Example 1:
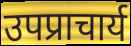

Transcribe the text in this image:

उपप्राचार्य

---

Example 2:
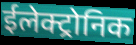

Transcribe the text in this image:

ईलेक्ट्रोनिक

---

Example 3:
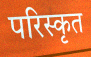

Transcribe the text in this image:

परिस्कृत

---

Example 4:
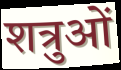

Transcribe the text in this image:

शत्रुओं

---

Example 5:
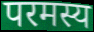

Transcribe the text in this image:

परमस्य